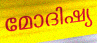
മോദിഷ്യ